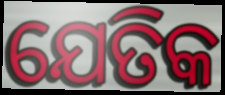
ଯେତିକ